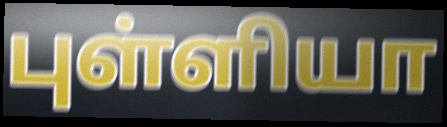
புள்ளியா